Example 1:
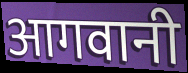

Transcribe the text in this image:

आगवानी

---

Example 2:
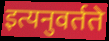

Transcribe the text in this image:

इत्यनुवर्तते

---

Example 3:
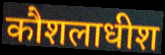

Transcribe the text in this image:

कौशलाधीश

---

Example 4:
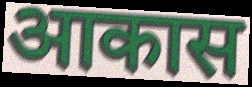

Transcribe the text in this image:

आकास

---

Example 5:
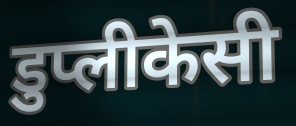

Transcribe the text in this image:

डुप्लीकेसी